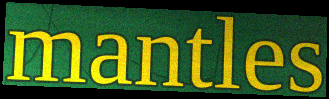
mantles